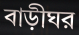
বাড়ীঘর